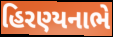
હિરણ્યનાભે